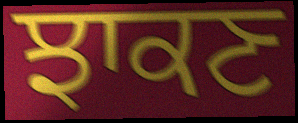
ਝਾਕਣ